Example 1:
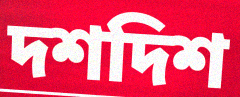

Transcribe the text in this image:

দশদিশ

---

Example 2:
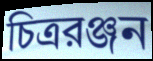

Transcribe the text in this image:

চিত্ররঞ্জন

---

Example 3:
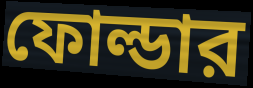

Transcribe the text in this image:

ফোল্ডার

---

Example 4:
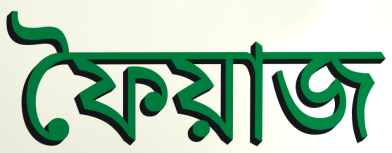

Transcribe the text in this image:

ফৈয়াজ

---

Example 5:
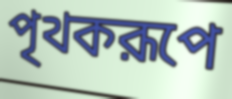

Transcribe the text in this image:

পৃথকরূপে